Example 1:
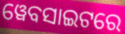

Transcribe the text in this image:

ୱେବସାଇଟରେ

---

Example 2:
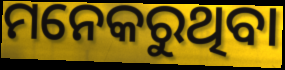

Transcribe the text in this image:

ମନେକରୁଥିବା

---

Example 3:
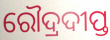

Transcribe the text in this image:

ରୌଦ୍ରଦୀପ୍ତ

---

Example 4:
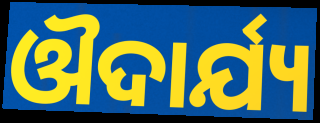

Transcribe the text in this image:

ଔଦାର୍ଯ୍ୟ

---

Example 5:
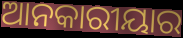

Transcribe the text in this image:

ଆନକାରୀୟାର